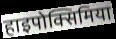
हाइपोक्सिमिया